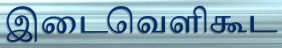
இடைவெளிகூட